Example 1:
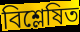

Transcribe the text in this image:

বিশ্লেষিত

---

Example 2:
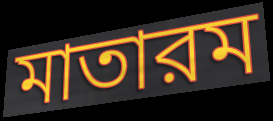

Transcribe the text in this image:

মাতারম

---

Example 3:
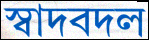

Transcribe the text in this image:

স্বাদবদল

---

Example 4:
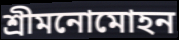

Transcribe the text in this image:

শ্রীমনোমোহন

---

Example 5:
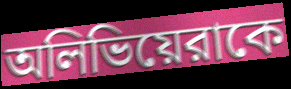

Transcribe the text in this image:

অলিভিয়েরাকে